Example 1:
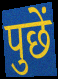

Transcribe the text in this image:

पुछें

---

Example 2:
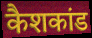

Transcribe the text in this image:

कैशकांड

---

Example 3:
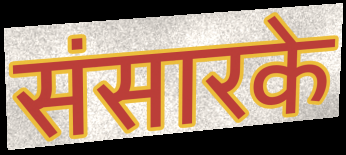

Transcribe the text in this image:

संसारके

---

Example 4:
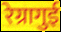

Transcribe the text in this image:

रेग्रागुई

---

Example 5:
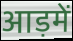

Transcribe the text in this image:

आड़में